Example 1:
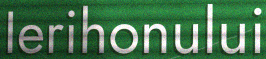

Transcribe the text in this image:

Ierihonului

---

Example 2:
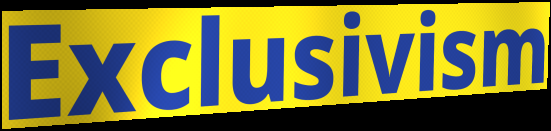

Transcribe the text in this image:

Exclusivism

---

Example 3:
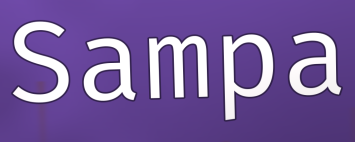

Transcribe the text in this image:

Sampa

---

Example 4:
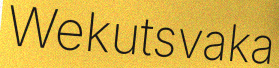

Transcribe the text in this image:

Wekutsvaka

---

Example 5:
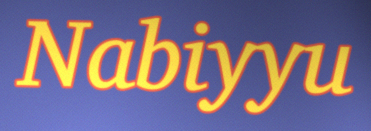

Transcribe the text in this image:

Nabiyyu